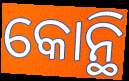
କୋନ୍ଥି